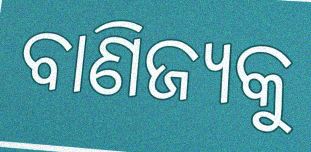
ବାଣିଜ୍ୟକୁ